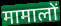
मामालों